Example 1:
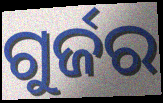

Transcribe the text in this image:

ଗୁର୍ଜର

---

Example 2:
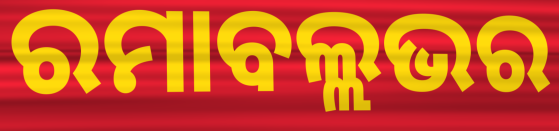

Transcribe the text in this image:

ରମାବଲ୍ଲଭର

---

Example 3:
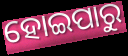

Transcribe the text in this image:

ହୋଇପାରୁ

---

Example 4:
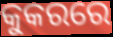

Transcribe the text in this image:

କୁକରରେ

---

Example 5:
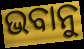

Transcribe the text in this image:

ଭବାନୁ